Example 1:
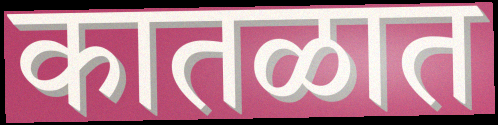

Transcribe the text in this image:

कातळात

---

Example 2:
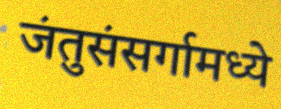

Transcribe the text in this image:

जंतुसंसर्गामध्ये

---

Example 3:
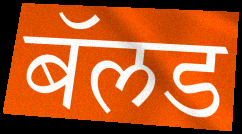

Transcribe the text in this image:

बॅलड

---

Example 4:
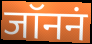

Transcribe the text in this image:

जॉननं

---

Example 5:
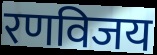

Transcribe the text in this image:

रणविजय